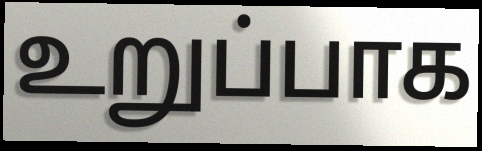
உறுப்பாக